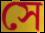
সে